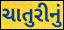
ચાતુરીનું